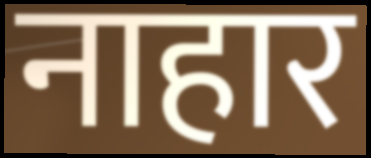
नाहार